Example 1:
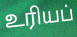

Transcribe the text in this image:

உரியப்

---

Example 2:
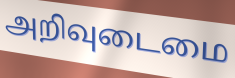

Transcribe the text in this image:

அறிவுடைமை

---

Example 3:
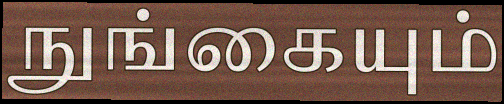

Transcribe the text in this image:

நுங்கையும்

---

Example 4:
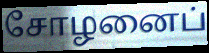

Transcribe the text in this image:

சோழனைப்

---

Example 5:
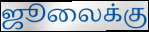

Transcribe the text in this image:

ஜூலைக்கு